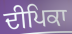
ਦੀਪਿਕਾ